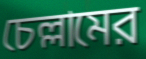
চেল্লামের